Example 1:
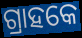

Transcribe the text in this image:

ଗ୍ରାହକେ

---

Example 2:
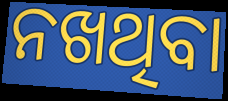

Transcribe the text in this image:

ନଖଥିବା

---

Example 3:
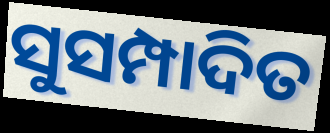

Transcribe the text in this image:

ସୁସମ୍ପାଦିତ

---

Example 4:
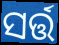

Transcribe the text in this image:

ସର୍ତ୍ତ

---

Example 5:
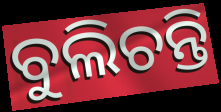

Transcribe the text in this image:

ବୁଲିଚନ୍ତି